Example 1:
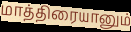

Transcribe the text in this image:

மாத்திரையானும்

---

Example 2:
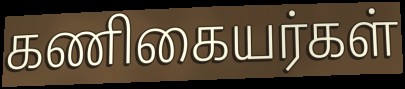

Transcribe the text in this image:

கணிகையர்கள்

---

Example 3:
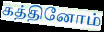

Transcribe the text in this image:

கத்தினோம்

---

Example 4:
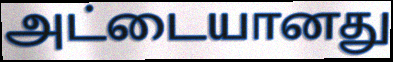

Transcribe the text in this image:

அட்டையானது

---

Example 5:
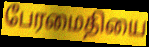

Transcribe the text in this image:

பேரமைதியை